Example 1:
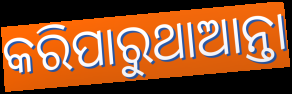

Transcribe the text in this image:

କରିପାରୁଥାଆନ୍ତା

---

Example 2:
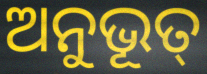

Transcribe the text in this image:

ଅନୁଭୂତ୍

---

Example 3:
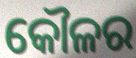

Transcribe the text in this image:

କୌଳର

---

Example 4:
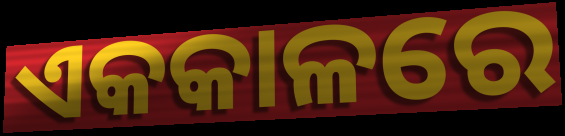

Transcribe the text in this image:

ଏକକାଳରେ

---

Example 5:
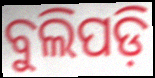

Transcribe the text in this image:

ବୁଲିପଡ଼ି